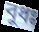
বুধঃ